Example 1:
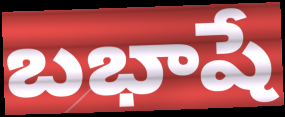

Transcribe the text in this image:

బభాషే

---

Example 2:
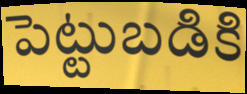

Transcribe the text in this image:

పెట్టుబడికి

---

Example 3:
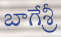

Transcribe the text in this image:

బాగేశ్రీ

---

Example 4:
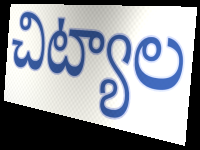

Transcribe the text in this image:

చిట్యాల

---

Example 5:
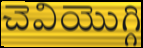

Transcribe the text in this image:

చెవియొగ్గి